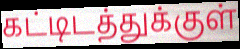
கட்டிடத்துக்குள்